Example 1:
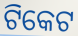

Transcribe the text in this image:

ଟିକେଟ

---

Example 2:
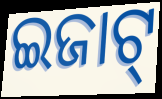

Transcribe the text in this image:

ଇଜାଟ୍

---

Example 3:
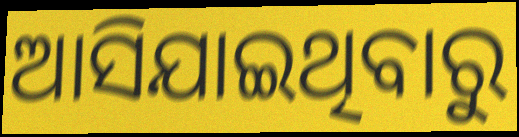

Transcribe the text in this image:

ଆସିଯାଇଥିବାରୁ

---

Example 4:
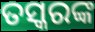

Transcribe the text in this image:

ତସ୍କରଙ୍କ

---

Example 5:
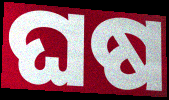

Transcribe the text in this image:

ଘଷ